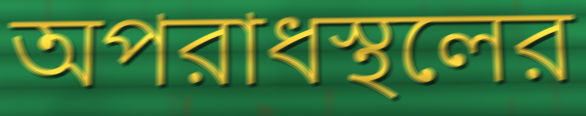
অপরাধস্থলের